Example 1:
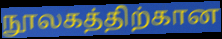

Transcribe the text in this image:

நூலகத்திற்கான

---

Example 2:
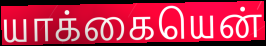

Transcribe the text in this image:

யாக்கையென்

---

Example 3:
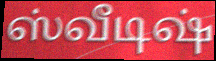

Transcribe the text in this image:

ஸ்வீடிஷ்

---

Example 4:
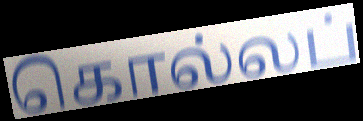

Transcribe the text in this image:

கொல்லப்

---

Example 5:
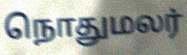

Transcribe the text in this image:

நொதுமலர்